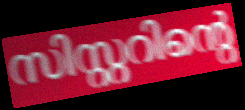
സിസ്റ്ററിന്റെ